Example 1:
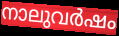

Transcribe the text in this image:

നാലുവർഷം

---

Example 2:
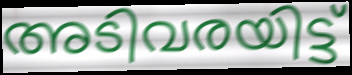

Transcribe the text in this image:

അടിവരയിട്ട്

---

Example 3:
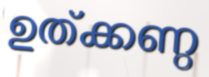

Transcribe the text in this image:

ഉത്ക്കണ്ഠ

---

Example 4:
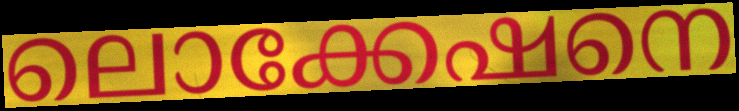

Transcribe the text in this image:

ലൊക്കേഷനെ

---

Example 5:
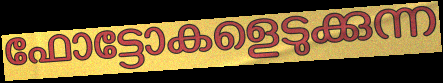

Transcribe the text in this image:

ഫോട്ടോകളെടുക്കുന്ന